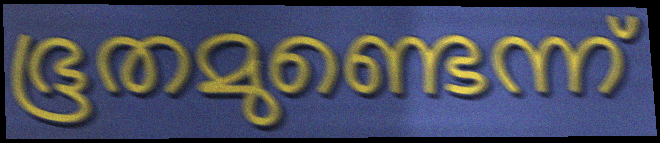
ഭൂതമുണ്ടെന്ന്